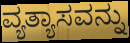
ವ್ಯತ್ಯಾಸವನ್ನು